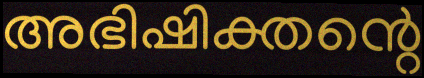
അഭിഷിക്തന്റെ